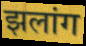
झलांग